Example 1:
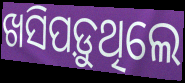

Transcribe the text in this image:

ଖସିପଡ଼ୁଥିଲେ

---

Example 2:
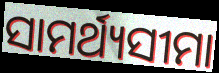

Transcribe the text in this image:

ସାମର୍ଥ୍ୟସୀମା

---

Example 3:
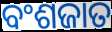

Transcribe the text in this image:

ବଂଶଜାତ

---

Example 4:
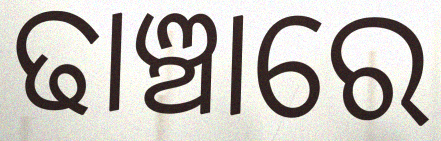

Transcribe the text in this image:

ଢାଞ୍ଚାରେ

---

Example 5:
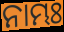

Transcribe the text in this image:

ନାମ୍ଭଃ